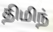
திமிந்